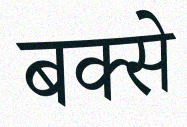
बक्से